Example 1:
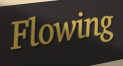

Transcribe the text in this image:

Flowing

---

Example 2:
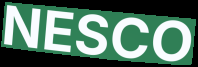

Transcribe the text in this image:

NESCO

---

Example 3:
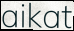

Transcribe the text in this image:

aikat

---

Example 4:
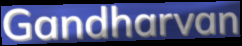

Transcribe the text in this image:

Gandharvan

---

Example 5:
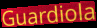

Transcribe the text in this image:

Guardiola